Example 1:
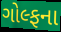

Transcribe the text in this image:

ગોલ્ફના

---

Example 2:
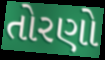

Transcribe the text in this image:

તોરણો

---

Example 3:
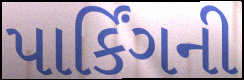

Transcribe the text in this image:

પાર્કિંગની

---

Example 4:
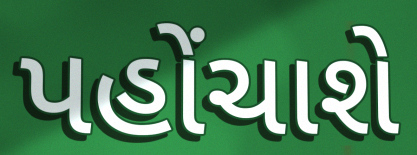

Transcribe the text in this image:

પહોંચાશે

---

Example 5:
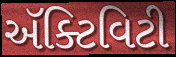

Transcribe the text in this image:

ઍક્ટિવિટી